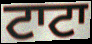
ਟਾਟਾ